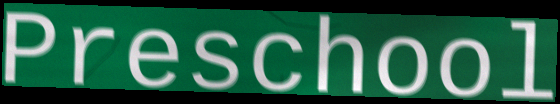
Preschool